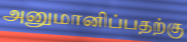
அனுமானிப்பதற்கு